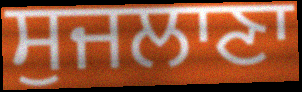
ਸੁਜਲਾਣਾ